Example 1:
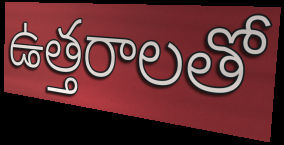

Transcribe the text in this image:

ఉత్తరాలతో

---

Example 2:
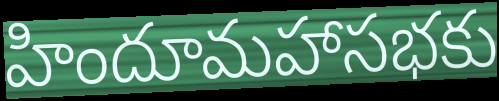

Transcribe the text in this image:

హిందూమహాసభకు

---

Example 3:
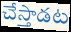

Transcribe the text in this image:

చేస్తాడట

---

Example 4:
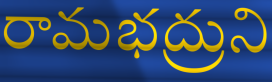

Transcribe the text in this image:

రామభద్రుని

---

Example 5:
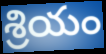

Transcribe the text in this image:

శ్రియం